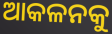
ଆକଳନକୁ